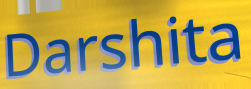
Darshita